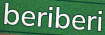
beriberi